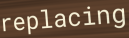
replacing